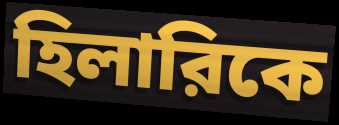
হিলারিকে